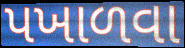
પખાળવા